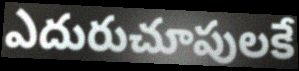
ఎదురుచూపులకే